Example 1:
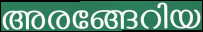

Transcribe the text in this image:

അരങ്ങേറിയ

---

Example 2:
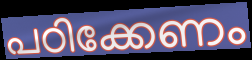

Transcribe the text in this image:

പഠിക്കേണം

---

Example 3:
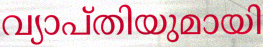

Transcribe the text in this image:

വ്യാപ്തിയുമായി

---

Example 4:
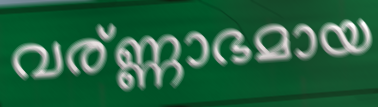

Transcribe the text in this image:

വര്ണ്ണാഭമായ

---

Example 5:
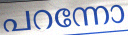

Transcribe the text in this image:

പറന്നോ